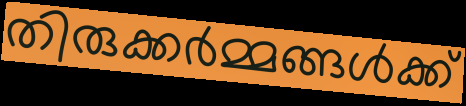
തിരുക്കർമ്മങ്ങൾക്ക്